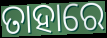
ତାହାରେ